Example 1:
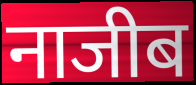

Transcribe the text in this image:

नाजीब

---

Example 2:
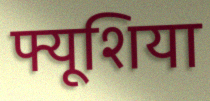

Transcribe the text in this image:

फ्यूशिया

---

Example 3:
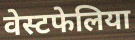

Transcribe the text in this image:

वेस्टफेलिया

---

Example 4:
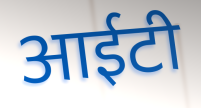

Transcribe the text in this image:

आईटी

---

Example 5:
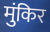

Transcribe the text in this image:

मुंकिर